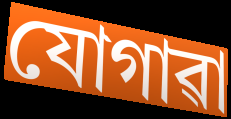
যোগাৱা